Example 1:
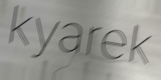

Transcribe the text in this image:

kyarek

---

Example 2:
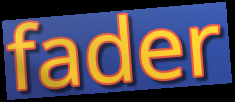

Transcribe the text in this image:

fader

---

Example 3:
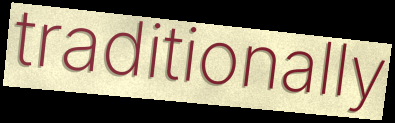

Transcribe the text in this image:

traditionally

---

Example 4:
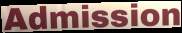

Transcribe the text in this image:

Admission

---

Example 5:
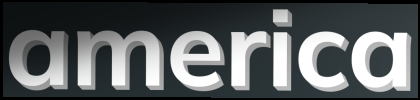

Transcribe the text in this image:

america